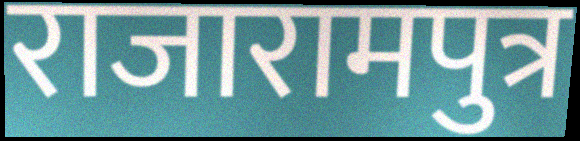
राजारामपुत्र